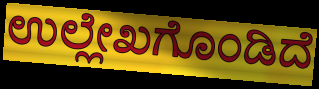
ಉಲ್ಲೇಖಗೊಂಡಿದೆ